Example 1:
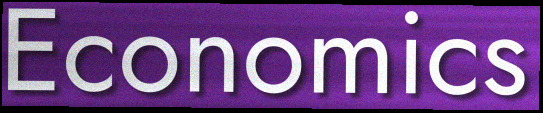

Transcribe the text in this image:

Economics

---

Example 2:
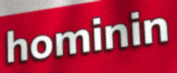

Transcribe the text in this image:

hominin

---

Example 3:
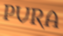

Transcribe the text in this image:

PURA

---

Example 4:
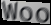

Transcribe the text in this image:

Woo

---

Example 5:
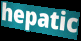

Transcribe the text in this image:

hepatic